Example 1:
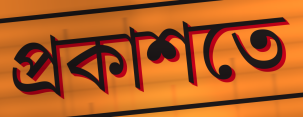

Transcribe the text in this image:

প্রকাশতে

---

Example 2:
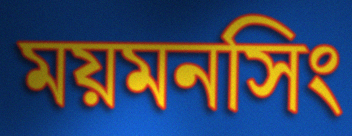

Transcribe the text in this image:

ময়মনসিং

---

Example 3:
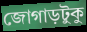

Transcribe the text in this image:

জোগাড়টুকু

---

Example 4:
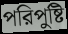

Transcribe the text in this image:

পরিপুষ্টি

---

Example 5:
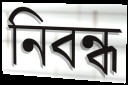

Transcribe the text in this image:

নিবন্ধ